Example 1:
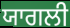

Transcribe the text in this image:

ਯਾਗਲੀ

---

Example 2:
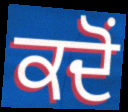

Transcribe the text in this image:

ਕਦੋਂ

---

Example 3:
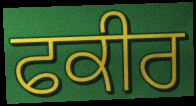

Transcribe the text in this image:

ਫਕੀਰ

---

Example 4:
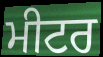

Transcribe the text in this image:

ਮੀਟਰ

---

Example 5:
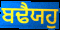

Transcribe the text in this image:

ਬਢੈਯਹੁ